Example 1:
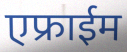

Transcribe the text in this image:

एफ्राईम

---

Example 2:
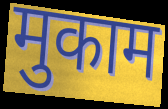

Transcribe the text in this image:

मुकाम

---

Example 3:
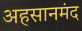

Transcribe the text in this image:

अहसानमंद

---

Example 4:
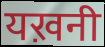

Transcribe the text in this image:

यख़नी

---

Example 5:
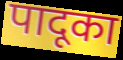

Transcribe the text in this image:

पादूका